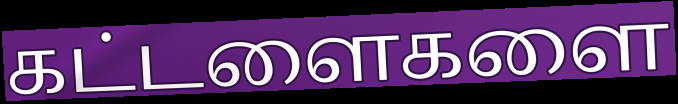
கட்டளைகளை